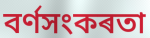
বৰ্ণসংকৰতা